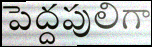
పెద్దపులిగా